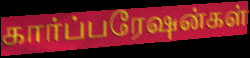
கார்ப்பரேஷன்கள்